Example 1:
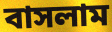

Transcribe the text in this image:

বাসলাম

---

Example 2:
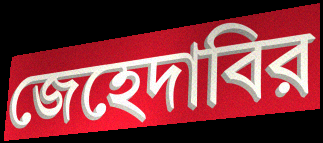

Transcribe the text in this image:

জেহেদাবির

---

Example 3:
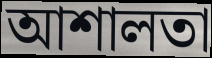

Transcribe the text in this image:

আশালতা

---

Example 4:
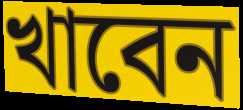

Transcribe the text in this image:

খাবেন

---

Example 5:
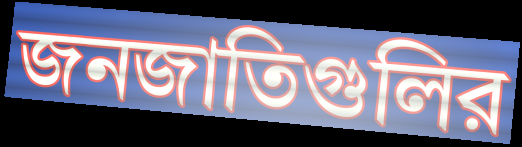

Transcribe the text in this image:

জনজাতিগুলির